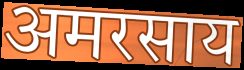
अमरसाय